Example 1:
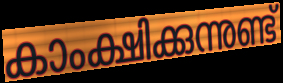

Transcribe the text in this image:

കാംക്ഷിക്കുന്നുണ്ട്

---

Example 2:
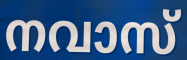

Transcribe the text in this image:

നവാസ്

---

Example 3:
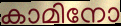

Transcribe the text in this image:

കാമിനോ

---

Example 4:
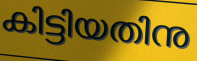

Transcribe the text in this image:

കിട്ടിയതിനു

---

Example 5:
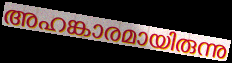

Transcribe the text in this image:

അഹങ്കാരമായിരുന്നു